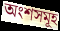
অংশসমূহ